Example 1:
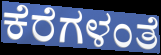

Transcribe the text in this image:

ಕೆರೆಗಳಂತೆ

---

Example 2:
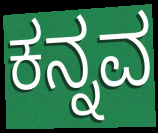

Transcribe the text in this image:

ಕನ್ನವ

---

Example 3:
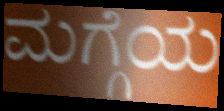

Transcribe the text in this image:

ಮಗ್ಗೆಯ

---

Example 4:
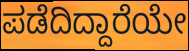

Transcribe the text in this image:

ಪಡೆದಿದ್ದಾರೆಯೇ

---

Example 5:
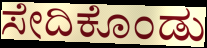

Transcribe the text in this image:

ಸೇದಿಕೊಂಡು